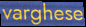
varghese